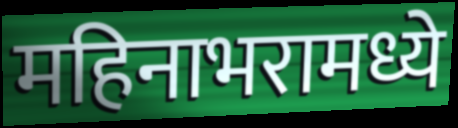
महिनाभरामध्ये